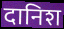
दानिश